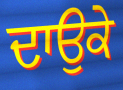
ਦਾਉਕੇ